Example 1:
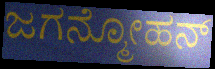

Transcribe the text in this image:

ಜಗನ್ಮೋಹನ್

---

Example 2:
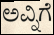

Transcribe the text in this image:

ಅವ್ನಿಗೆ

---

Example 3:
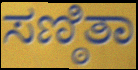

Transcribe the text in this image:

ಸಣ್ಠಿತಾ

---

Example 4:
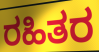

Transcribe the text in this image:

ರಹಿತರ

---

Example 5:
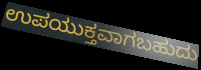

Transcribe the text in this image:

ಉಪಯುಕ್ತವಾಗಬಹುದು